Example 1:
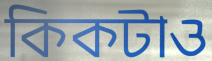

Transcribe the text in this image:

কিকটাও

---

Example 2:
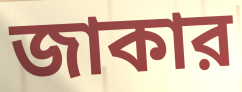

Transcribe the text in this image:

জাকার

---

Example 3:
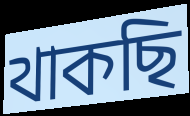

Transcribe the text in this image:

থাকছি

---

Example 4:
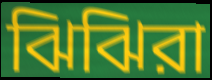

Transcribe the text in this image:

ঝিঝিরা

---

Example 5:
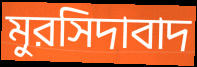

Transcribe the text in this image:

মুরসিদাবাদ